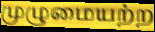
முழுமையற்ற